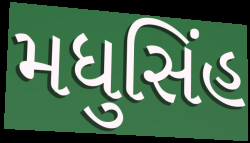
મધુસિંહ